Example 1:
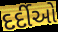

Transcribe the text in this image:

દર્દીઓ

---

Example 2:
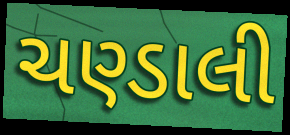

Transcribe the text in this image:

ચણ્ડાલી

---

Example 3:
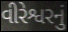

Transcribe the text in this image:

વીરેશ્વરનું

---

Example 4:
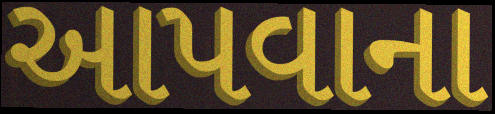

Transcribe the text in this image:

આપવાના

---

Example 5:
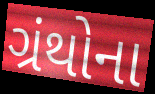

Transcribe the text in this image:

ગ્રંથોના